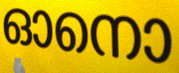
ഓനൊ